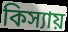
কিস্যায়